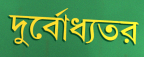
দুর্বোধ্যতর